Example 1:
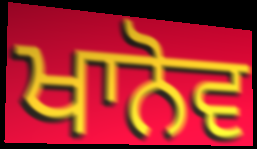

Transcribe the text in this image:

ਖਾਨੋਵ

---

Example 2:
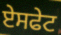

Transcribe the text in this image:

ਏਸਫੇਟ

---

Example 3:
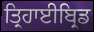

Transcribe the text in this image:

ਤ੍ਰਿਹਾਈਬ੍ਰਿਡ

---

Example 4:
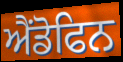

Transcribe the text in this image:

ਐਂਡੋਫਿਨ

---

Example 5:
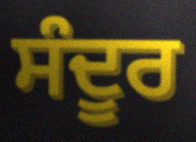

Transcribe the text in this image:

ਸੰਦੂਰ